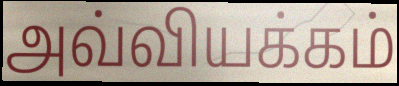
அவ்வியக்கம்